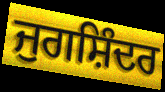
ਜੁਗਸ਼ਿੰਦਰ